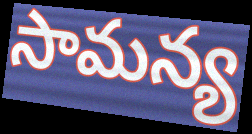
సామన్య